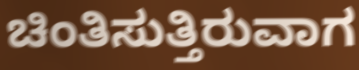
ಚಿಂತಿಸುತ್ತಿರುವಾಗ